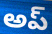
అప్